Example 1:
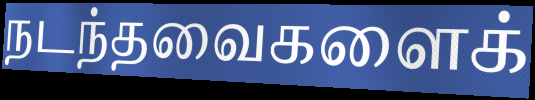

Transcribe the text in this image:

நடந்தவைகளைக்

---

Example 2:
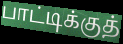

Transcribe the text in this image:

பாட்டிக்குத்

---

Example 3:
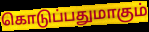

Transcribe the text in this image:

கொடுப்பதுமாகும்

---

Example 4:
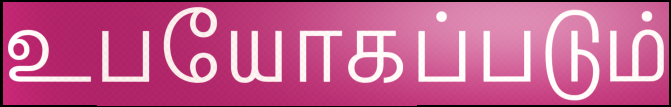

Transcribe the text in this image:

உபயோகப்படும்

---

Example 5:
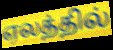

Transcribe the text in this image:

ஏலத்தில்